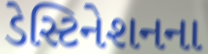
ડેસ્ટિનેશનના